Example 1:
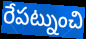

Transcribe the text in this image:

రేపట్నుంచి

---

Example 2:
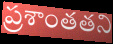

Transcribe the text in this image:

ప్రశాంతతని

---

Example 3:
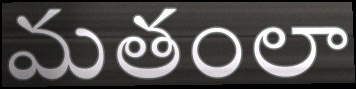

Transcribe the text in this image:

మతంలా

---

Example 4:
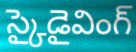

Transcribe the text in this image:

స్కైడైవింగ్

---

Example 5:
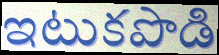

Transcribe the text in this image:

ఇటుకపొడి